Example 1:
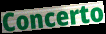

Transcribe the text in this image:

Concerto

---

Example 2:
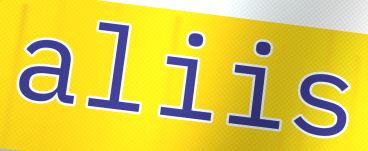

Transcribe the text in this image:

aliis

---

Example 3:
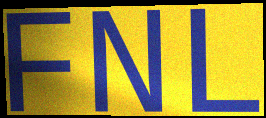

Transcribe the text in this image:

FNL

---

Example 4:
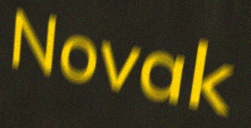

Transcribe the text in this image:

Novak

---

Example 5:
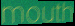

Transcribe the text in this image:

mouth